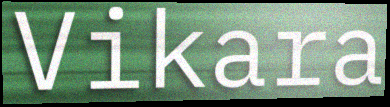
Vikara